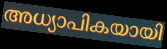
അധ്യാപികയായി